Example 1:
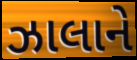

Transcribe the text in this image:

ઝાલાને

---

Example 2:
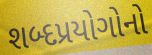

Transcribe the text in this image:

શબ્દપ્રયોગોનો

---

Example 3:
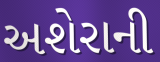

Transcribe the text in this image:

અશેરાની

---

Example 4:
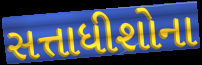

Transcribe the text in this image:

સત્તાધીશોના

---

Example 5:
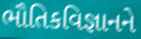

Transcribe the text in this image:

ભૌતિકવિજ્ઞાનને